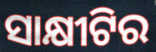
ସାକ୍ଷୀଟିର